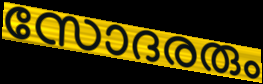
സോദരരും